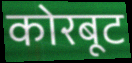
कोरबूट